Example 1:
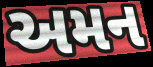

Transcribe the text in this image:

અમન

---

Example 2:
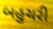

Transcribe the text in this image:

બહુચરી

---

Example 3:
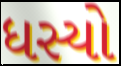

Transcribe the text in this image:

ધસ્યો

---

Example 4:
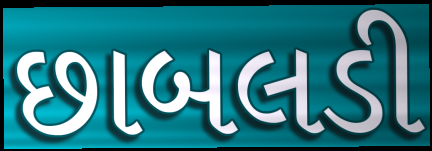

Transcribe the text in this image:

છાબલડી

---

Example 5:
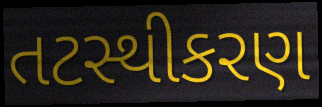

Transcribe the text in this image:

તટસ્થીકરણ